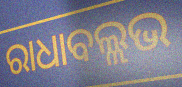
ରାଧାବଲ୍ଲଭ